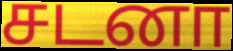
சடனா